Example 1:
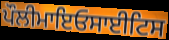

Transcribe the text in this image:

ਪੌਲੀਮਾਇਓਸਾਈਟਿਸ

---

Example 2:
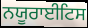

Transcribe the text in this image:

ਨਯੂਰਾਈਟਿਸ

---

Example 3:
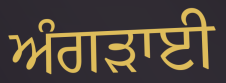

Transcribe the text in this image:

ਅੰਗੜਾਈ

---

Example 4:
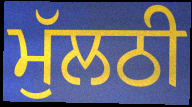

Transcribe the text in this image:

ਮੁੱਲਠੀ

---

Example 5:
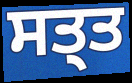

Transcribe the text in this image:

ਸਤ੍ਤ